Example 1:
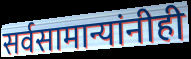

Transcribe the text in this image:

सर्वसामान्यांनीही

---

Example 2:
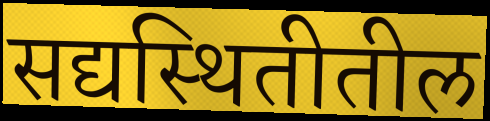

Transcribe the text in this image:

सद्यस्थितीतील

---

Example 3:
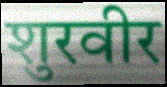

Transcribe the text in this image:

शुरवीर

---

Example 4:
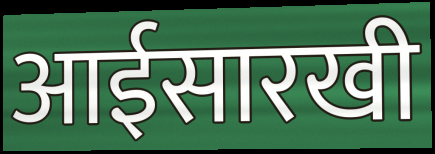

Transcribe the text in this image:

आईसारखी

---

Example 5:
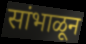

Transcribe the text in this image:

सांभाळून